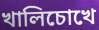
খালিচোখে